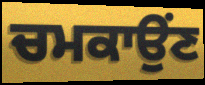
ਚਮਕਾਉਂਣ